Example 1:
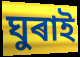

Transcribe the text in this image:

ঘুৰাই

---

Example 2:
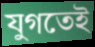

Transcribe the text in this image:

যুগতেই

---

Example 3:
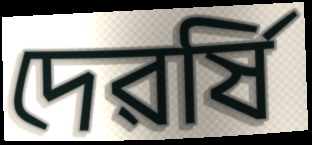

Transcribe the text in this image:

দেৱৰ্ষি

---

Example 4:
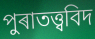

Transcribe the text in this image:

পুৰাতত্ত্ববিদ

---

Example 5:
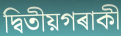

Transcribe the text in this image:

দ্বিতীয়গৰাকী